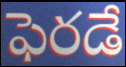
ఫెరడే